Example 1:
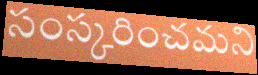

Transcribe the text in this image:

సంస్కరించమని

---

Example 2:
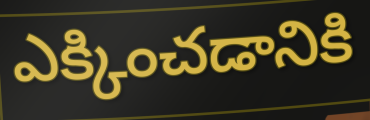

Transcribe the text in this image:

ఎక్కించడానికి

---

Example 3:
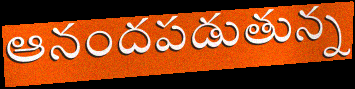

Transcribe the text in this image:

ఆనందపడుతున్న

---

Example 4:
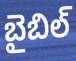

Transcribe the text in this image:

బైబిల్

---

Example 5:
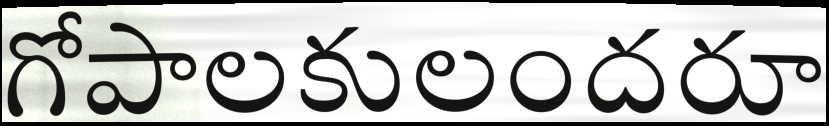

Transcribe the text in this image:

గోపాలకులందరూ